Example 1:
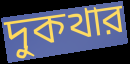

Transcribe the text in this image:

দুকথার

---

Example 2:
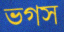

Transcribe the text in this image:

ভগস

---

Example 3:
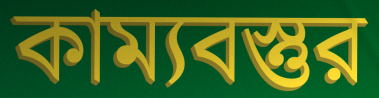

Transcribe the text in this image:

কাম্যবস্তুর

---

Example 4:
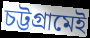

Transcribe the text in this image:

চট্টগ্রামেই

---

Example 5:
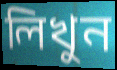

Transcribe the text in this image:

লিখুন